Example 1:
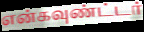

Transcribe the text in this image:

என்கவுண்ட்டர்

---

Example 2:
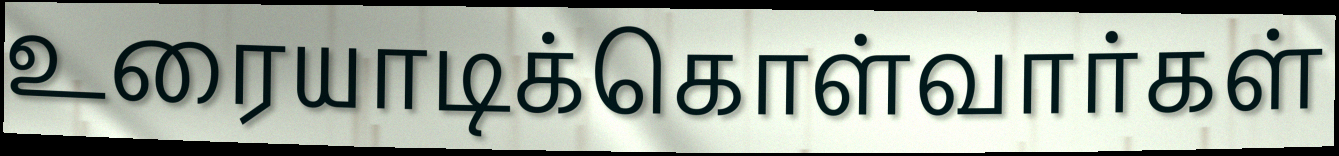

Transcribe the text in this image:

உரையாடிக்கொள்வார்கள்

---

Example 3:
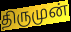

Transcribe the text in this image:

திருமுன்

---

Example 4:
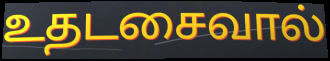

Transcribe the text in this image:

உதடசைவால்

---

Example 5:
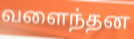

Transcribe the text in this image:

வளைந்தன